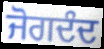
ਜੋਗਦੰਦ